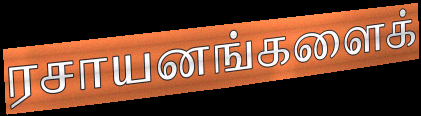
ரசாயனங்களைக்